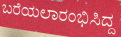
ಬರೆಯಲಾರಂಭಿಸಿದ್ದ